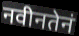
नवीनतेनं